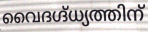
വൈദഗ്ദ്ധ്യത്തിന്